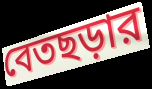
বেতছড়ার